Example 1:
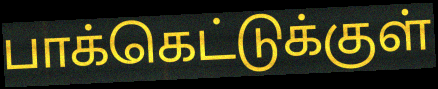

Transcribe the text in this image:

பாக்கெட்டுக்குள்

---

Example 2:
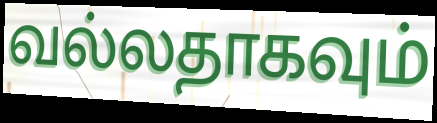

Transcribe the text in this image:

வல்லதாகவும்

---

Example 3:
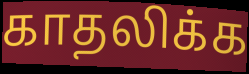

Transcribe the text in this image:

காதலிக்க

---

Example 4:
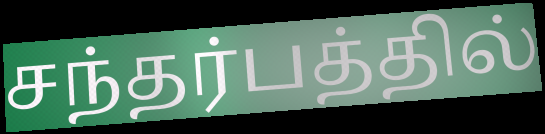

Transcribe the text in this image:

சந்தர்பத்தில்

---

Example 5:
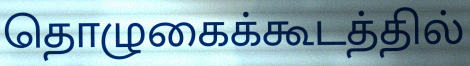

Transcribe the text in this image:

தொழுகைக்கூடத்தில்